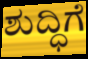
ಶುದ್ಧಿಗೆ